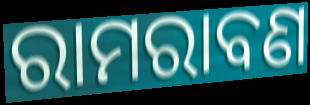
ରାମରାବଣ